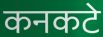
कनकटे